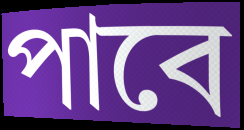
পাবে